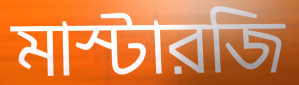
মাস্টারজি